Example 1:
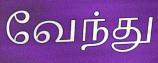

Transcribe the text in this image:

வேந்து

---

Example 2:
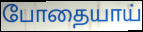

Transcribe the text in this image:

போதையாய்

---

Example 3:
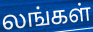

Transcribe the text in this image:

லங்கள்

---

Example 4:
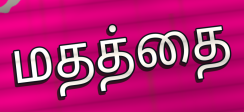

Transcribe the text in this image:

மதத்தை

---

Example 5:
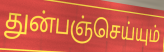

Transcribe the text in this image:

துன்பஞ்செய்யும்